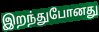
இறந்துபோனது